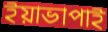
ইয়াভাপাই